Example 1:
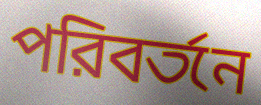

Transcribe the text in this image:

পরিবর্তনে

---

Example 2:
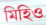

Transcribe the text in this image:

মিহিও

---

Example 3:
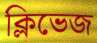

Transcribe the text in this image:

ক্লিভেজ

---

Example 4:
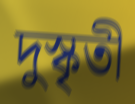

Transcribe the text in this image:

দুস্কৃতী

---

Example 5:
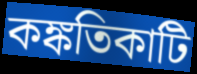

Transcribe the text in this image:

কঙ্কতিকাটি